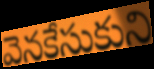
వెనకేసుకుని